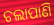
ଚଲାପାଣି